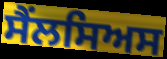
ਸੈਂਲਸਿਅਸ